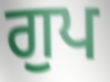
ਗੁਪ